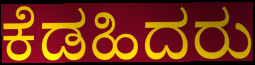
ಕೆಡಹಿದರು